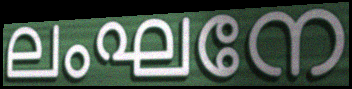
ലംഘനേ